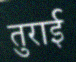
तुराई